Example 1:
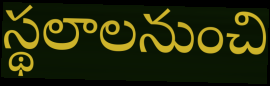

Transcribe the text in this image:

స్థలాలనుంచి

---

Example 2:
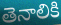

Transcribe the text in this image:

తెనాలికి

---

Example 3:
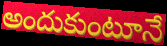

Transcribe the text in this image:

అందుకుంటూనే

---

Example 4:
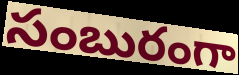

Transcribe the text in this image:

సంబురంగా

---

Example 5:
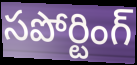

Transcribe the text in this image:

సపోర్టింగ్